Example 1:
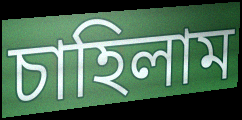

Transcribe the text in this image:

চাহিলাম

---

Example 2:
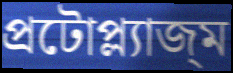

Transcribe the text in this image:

প্রটোপ্ল্যাজ্ম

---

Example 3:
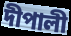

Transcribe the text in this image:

দীপালী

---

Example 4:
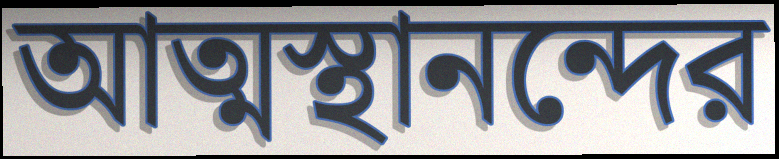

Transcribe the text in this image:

আত্মস্থানন্দের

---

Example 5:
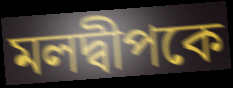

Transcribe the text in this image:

মলদ্বীপকে